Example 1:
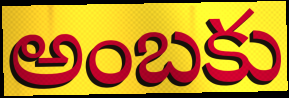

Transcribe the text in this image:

అంబకు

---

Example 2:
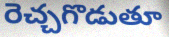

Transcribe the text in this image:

రెచ్చగొడుతూ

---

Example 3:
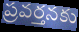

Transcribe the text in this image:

ప్రవర్తనకు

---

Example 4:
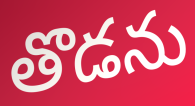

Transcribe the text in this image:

తొడను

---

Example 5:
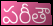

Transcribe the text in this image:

పరీతౌ